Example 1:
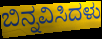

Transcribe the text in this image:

ಬಿನ್ನವಿಸಿದಳು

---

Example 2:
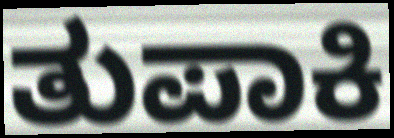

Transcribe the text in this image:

ತುಪಾಕಿ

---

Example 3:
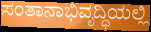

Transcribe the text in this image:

ಸಂತಾನಾಭಿವೃದ್ಧಿಯಲ್ಲಿ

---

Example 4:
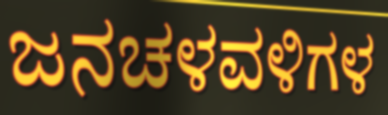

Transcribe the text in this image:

ಜನಚಳವಳಿಗಳ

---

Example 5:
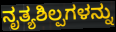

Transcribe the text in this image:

ನೃತ್ಯಶಿಲ್ಪಗಳನ್ನು